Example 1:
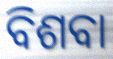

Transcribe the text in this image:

ବିଶବା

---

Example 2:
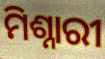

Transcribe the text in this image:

ମିଶ୍ନାରୀ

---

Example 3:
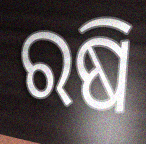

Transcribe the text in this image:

ରଷି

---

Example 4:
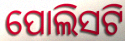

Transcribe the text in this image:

ପୋଲିସଟି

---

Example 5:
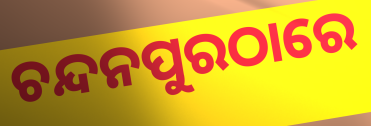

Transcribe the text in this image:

ଚନ୍ଦନପୁରଠାରେ